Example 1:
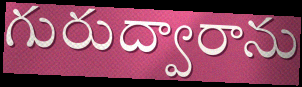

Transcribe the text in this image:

గురుద్వారాను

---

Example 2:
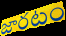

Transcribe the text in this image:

జారటం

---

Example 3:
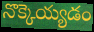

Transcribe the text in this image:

నొక్కెయ్యడం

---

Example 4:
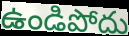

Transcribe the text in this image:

ఉండిపోదు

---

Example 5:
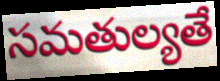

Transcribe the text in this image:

సమతుల్యతే